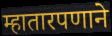
म्हातारपणाने